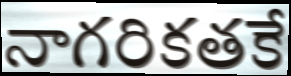
నాగరికతకే